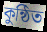
কুন্ঠিত